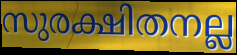
സുരക്ഷിതനല്ല